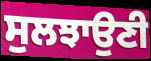
ਸੁਲਝਾਉਣੀ